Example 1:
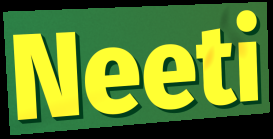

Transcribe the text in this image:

Neeti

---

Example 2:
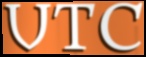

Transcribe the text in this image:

UTC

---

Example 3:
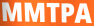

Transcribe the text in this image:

MMTPA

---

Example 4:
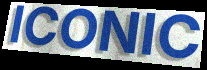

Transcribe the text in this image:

ICONIC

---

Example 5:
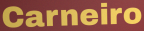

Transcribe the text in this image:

Carneiro